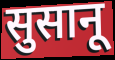
सुसानू